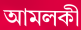
আমলকী